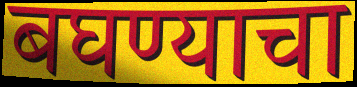
बघण्याचा